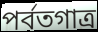
পর্বতগাত্র